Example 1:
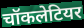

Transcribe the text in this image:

चॉकलेटियर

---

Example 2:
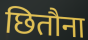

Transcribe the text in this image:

छितौना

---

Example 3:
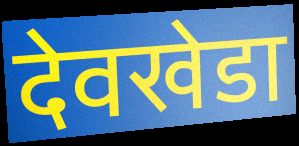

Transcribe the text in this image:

देवखेडा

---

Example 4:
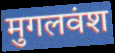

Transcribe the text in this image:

मुगलवंश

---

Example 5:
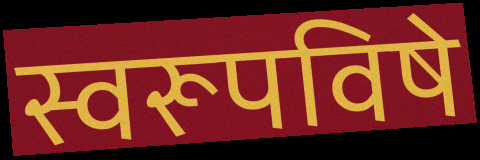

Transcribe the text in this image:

स्वरूपविषे